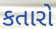
કતારો